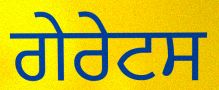
ਗੇਰੇਟਸ